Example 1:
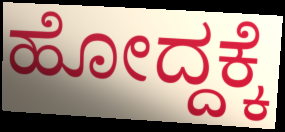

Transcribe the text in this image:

ಹೋದ್ದಕ್ಕೆ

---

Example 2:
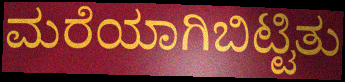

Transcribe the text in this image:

ಮರೆಯಾಗಿಬಿಟ್ಟಿತು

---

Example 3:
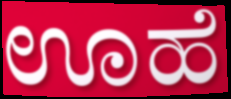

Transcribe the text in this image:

ಊಹೆ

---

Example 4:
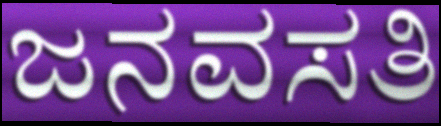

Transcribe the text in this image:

ಜನವಸತಿ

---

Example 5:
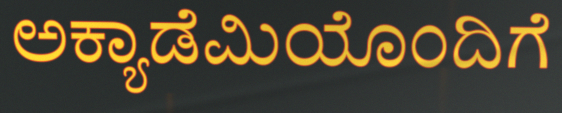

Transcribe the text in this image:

ಅಕ್ಯಾಡೆಮಿಯೊಂದಿಗೆ